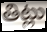
తిట్లు